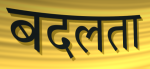
बदलता